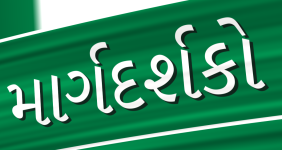
માર્ગદર્શકો